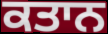
ਕਤਾਨ